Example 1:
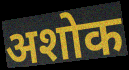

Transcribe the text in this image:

अशोक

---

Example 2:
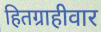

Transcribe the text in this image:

हितग्राहीवार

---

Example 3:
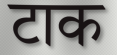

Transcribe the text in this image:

टाक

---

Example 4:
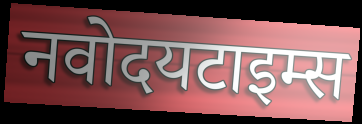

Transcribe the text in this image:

नवोदयटाइम्स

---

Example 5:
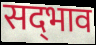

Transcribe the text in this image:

सद्‍भाव